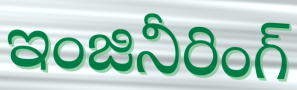
ఇంజినీరింగ్